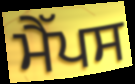
ਮੈੱਪਸ